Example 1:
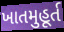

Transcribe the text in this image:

ખાતમુહૂર્ત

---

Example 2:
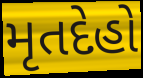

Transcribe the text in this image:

મૃતદેહો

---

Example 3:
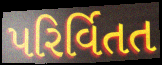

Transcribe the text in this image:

પરિર્વિતત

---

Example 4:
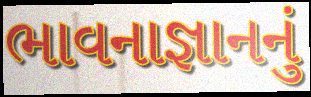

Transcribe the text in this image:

ભાવનાજ્ઞાનનું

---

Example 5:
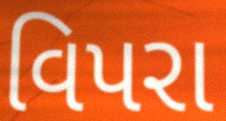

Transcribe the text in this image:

વિપરા